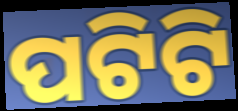
ପଟିଟି